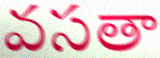
వసతా